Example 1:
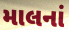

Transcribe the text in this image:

માલનાં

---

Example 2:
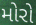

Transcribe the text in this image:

મોરો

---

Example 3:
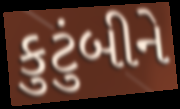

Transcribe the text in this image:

કુટુંબીને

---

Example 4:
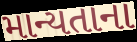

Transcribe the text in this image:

માન્યતાના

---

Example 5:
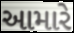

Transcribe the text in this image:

આમારે